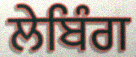
ਲੇਬਿੰਗ